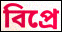
বিপ্রে